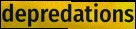
depredations